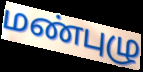
மண்புழு